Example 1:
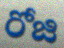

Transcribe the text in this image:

రోజి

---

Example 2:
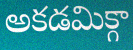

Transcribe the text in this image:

అకడమిక్గా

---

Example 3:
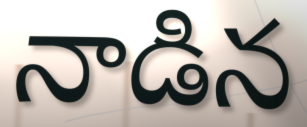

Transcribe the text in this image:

నాడిన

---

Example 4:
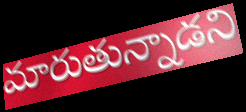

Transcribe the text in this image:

మారుతున్నాడని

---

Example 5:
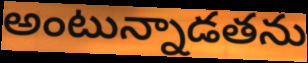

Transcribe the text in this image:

అంటున్నాడతను